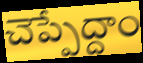
చెప్పేద్దాం